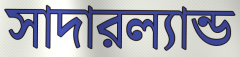
সাদারল্যান্ড